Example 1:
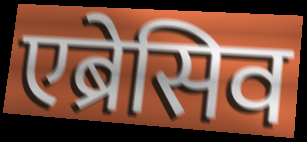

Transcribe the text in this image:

एब्रेसिव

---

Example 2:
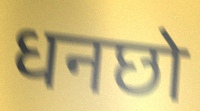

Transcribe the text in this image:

धनछो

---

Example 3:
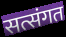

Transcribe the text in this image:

सत्संगत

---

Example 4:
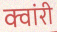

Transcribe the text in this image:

क्वांरी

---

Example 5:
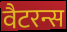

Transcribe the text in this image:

वैटरन्स